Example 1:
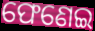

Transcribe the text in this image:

ଫେଣେଇ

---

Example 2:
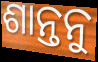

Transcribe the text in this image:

ଶାନ୍ତନୁ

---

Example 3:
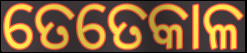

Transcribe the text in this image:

ତେତେକାଳ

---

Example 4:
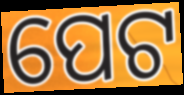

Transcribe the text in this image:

ପେଟ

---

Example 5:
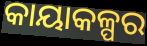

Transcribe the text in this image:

କାୟାକଳ୍ପର